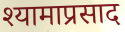
श्यामाप्रसाद